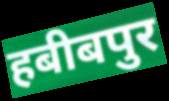
हबीबपुर